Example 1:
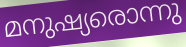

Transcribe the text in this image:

മനുഷ്യരൊന്നു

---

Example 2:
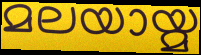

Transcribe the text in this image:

മലയായ്മ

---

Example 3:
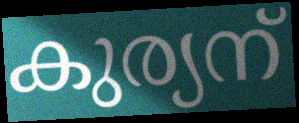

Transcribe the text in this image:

കുര്യന്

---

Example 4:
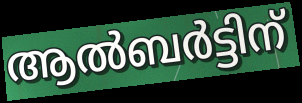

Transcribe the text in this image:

ആൽബർട്ടിന്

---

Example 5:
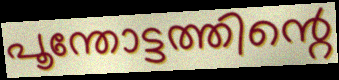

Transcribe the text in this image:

പൂന്തോട്ടത്തിന്റെ